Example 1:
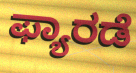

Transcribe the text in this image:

ಫ್ಯಾರಡೆ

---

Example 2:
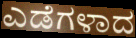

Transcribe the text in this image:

ಎಡೆಗಳಾದ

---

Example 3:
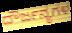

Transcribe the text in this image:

ದೌರ್ಜನ್ಯಗಳ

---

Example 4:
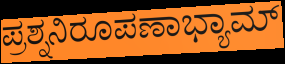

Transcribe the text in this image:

ಪ್ರಶ್ನನಿರೂಪಣಾಭ್ಯಾಮ್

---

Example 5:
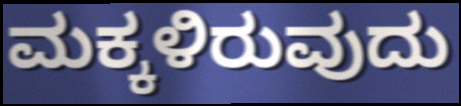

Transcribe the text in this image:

ಮಕ್ಕಳಿರುವುದು